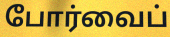
போர்வைப்